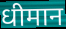
धीमान